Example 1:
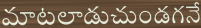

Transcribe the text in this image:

మాటలాడుచుండగనే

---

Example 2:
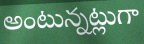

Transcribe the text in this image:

అంటున్నట్లుగా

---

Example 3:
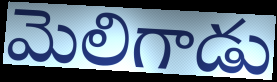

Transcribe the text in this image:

మెలిగాడు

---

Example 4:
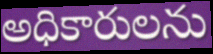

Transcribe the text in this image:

అధికారులను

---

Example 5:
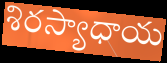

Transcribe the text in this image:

శిరస్యాధాయ